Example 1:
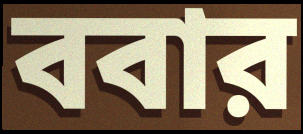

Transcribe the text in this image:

ববার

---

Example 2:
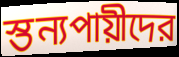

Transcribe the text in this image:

স্তন্যপায়ীদের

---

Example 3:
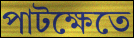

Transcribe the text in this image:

পাটক্ষেতে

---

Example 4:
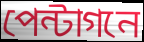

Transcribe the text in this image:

পেন্টাগনে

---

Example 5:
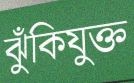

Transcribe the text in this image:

ঝুঁকিযুক্ত